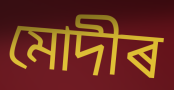
মোদীৰ